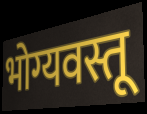
भोग्यवस्तू